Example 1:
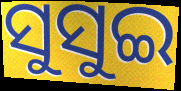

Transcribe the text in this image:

ସୁସୁଇ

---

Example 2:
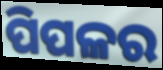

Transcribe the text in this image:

ପିପଳର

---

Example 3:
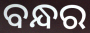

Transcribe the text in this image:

ବନ୍ଧର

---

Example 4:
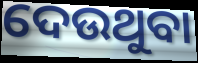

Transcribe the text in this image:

ଦେଉଥୁବା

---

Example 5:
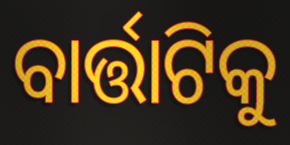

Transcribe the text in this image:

ବାର୍ତ୍ତାଟିକୁ